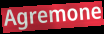
Agremone